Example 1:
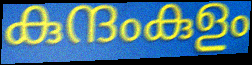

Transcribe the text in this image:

കുന്ദംകുളം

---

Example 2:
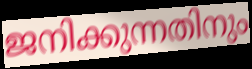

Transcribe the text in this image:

ജനിക്കുന്നതിനും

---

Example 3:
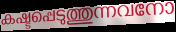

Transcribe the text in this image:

കഷ്ടപ്പെടുത്തുന്നവനോ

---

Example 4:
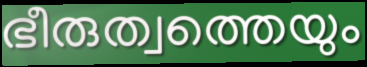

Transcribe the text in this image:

ഭീരുത്വത്തെയും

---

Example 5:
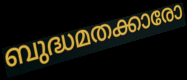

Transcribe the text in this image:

ബുദ്ധമതക്കാരോ